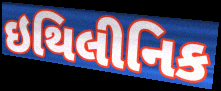
ઇથિલીનિક